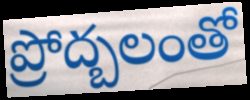
ప్రోద్బలంతో